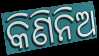
କିଣିନିଅ